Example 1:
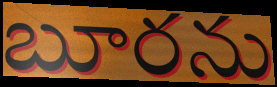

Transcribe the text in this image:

బూరను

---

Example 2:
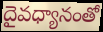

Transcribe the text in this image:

దైవధ్యానంతో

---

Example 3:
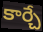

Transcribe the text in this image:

కార్చే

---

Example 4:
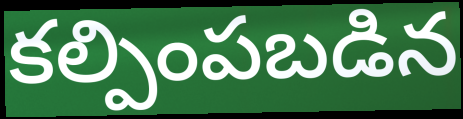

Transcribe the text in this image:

కల్పింపబడిన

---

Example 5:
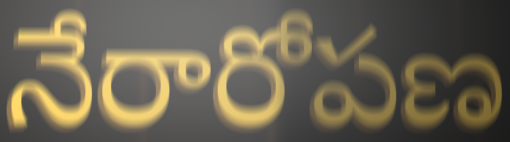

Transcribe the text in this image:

నేరారోపణ